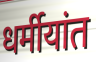
धर्मीयांत